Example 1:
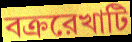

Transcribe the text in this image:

বক্ররেখাটি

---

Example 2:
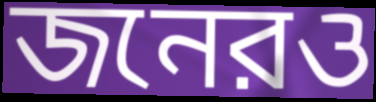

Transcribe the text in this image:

জনেরও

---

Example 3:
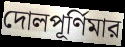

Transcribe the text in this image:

দোলপূর্ণিমার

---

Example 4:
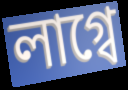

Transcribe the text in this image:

লাগ্বে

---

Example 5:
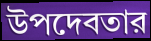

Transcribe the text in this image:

উপদেবতার